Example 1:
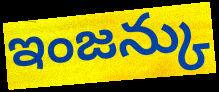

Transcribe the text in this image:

ఇంజన్కు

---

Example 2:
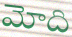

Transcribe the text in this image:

మోది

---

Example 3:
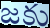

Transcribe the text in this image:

జకు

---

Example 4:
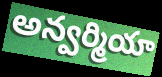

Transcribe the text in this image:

అన్వర్మియా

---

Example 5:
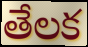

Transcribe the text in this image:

తేలక